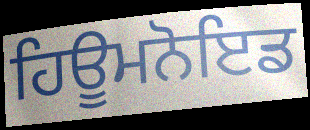
ਹਿਊਮਨੋਇਡ